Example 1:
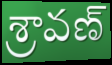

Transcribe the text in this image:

శ్రావణ్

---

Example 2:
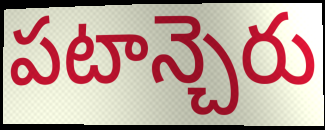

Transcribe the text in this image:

పటాన్చెరు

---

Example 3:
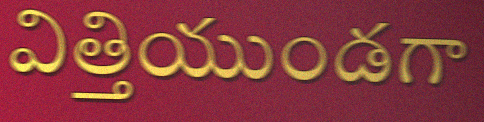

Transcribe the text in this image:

విత్తియుండగా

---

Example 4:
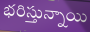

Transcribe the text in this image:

భరిస్తున్నాయి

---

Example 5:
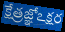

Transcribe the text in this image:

క్షేత్రజ్ఞోఽక్షర